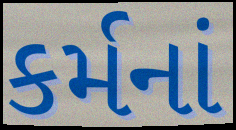
કર્મનાં